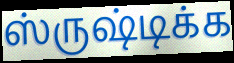
ஸ்ருஷ்டிக்க